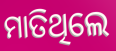
ମାତିଥିଲେ